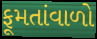
ફૂમતાંવાળો